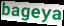
bageya